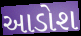
આડોશ